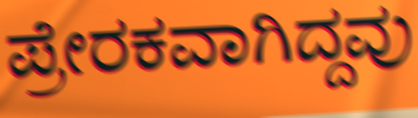
ಪ್ರೇರಕವಾಗಿದ್ದವು